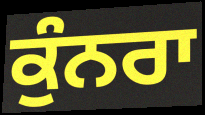
ਕੁੰਨਰਾ